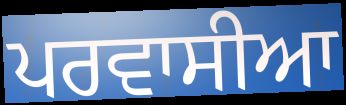
ਪਰਵਾਸੀਆ